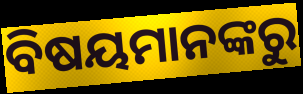
ବିଷୟମାନଙ୍କରୁ